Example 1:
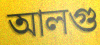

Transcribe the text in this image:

আলগু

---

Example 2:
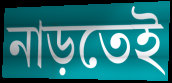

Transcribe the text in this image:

নাড়তেই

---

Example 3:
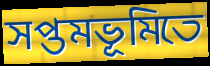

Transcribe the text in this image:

সপ্তমভূমিতে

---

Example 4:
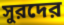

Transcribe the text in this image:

সুরদের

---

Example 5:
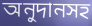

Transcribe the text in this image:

অনুদানসহ